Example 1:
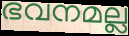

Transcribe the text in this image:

ഭവനമല്ല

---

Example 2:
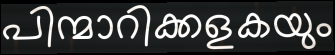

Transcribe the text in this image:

പിന്മാറിക്കളകയും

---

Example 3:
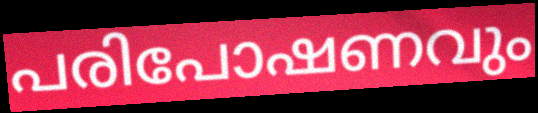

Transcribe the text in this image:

പരിപോഷണവും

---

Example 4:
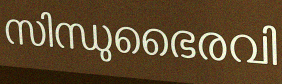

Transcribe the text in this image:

സിന്ധുഭൈരവി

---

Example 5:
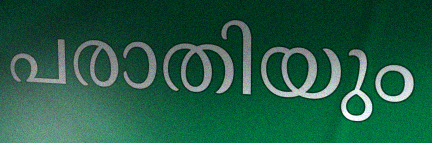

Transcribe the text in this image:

പരാതിയും